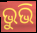
ଭୁଭି